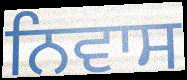
ਨਿਵਾਸ